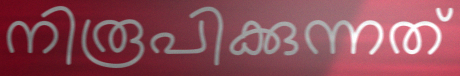
നിരൂപിക്കുന്നത്